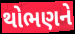
થોભણને